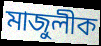
মাজুলীক